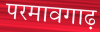
परमावगाढ़